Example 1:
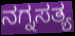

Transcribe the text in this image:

ನಗ್ನಸತ್ಯ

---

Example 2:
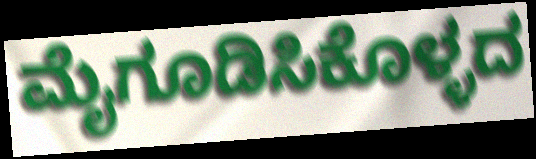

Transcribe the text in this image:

ಮೈಗೂಡಿಸಿಕೊಳ್ಳದ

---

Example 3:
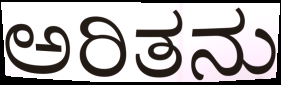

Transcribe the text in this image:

ಅರಿತನು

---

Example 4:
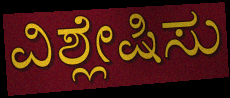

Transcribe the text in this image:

ವಿಶ್ಲೇಷಿಸು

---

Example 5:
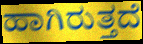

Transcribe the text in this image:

ಹಾಗಿರುತ್ತದೆ